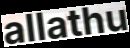
allathu